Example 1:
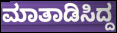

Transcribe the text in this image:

ಮಾತಾಡಿಸಿದ್ದ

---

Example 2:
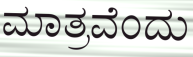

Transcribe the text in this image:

ಮಾತ್ರವೆಂದು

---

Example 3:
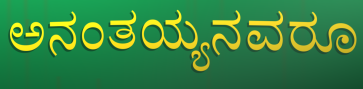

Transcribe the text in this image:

ಅನಂತಯ್ಯನವರೂ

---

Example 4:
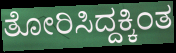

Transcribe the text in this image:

ತೋರಿಸಿದ್ದಕ್ಕಿಂತ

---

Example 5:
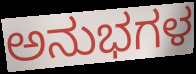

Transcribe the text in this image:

ಅನುಭಗಳ